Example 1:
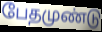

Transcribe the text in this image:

பேதமுண்டு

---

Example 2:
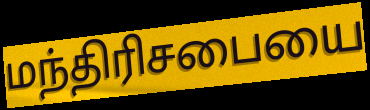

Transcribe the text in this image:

மந்திரிசபையை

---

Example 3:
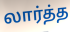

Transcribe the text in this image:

லார்த்த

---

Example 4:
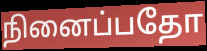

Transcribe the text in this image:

நினைப்பதோ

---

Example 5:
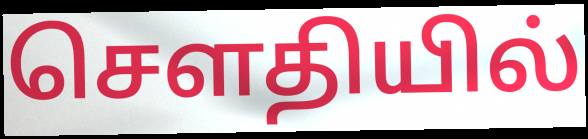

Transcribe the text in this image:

செளதியில்